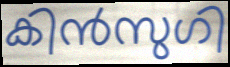
കിൻസുഗി